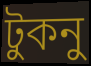
টুকনু